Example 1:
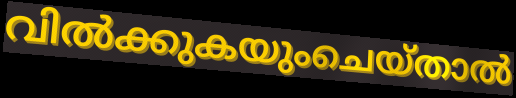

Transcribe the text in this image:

വിൽക്കുകയുംചെയ്താൽ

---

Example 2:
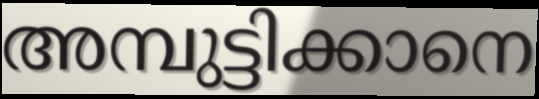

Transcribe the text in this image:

അമ്പുട്ടിക്കാനെ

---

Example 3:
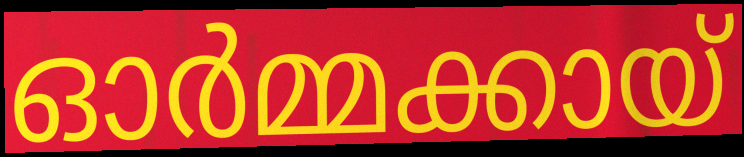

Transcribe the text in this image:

ഓർമ്മക്കായ്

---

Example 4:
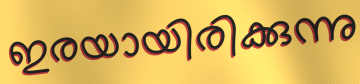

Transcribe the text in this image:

ഇരയായിരിക്കുന്നു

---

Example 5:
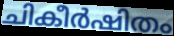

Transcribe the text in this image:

ചികീർഷിതം